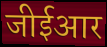
जीईआर